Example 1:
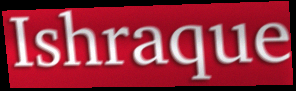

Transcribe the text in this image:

Ishraque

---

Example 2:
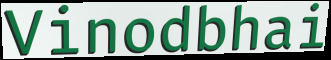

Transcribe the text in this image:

Vinodbhai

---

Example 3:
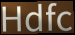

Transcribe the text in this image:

Hdfc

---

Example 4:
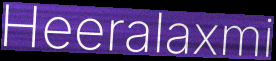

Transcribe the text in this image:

Heeralaxmi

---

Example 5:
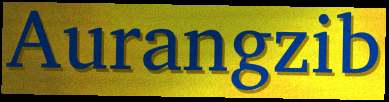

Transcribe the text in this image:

Aurangzib